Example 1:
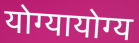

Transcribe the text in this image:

योग्यायोग्य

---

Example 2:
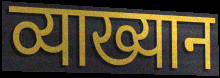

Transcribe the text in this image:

व्याख्यान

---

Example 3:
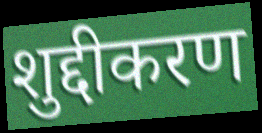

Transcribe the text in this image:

शुद्दीकरण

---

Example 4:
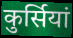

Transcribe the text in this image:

कुर्सियां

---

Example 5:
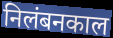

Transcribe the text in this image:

निलंबनकाल